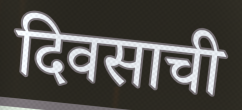
दिवसाची